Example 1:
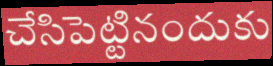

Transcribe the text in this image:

చేసిపెట్టినందుకు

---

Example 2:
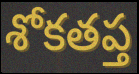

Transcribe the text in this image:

శోకతప్త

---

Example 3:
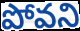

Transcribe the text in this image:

పోవని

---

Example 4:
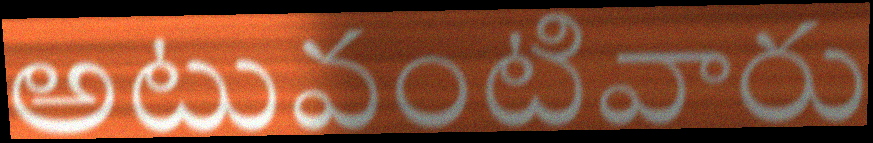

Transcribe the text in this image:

అటువంటివారు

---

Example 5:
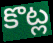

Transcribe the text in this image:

కొట్ల